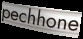
pechhone